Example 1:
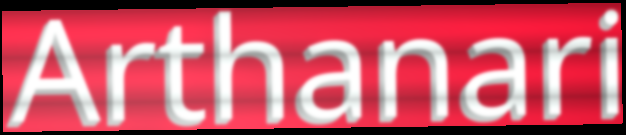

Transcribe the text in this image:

Arthanari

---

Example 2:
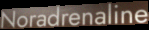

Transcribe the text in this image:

Noradrenaline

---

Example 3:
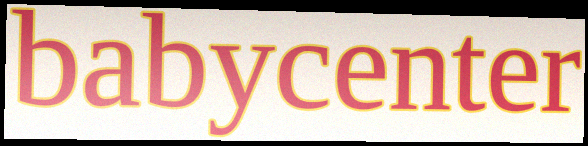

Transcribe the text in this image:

babycenter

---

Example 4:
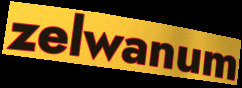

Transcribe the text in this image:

zelwanum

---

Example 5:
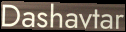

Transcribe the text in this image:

Dashavtar